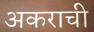
अकराची